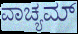
ವಾಚ್ಯಮ್